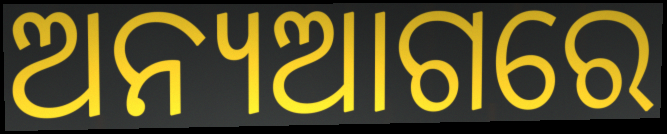
ଅନ୍ୟଆଗରେ